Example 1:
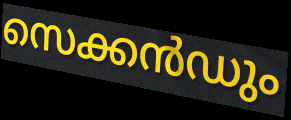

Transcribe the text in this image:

സെക്കൻഡും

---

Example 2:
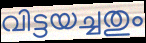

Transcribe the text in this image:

വിട്ടയച്ചതും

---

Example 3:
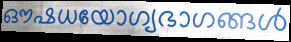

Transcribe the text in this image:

ഔഷധയോഗ്യഭാഗങ്ങൾ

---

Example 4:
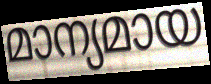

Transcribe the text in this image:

മാന്യമായ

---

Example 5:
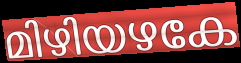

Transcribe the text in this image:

മിഴിയഴകേ